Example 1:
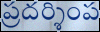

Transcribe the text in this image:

ప్రదర్శింప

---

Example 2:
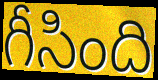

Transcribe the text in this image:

గీసింది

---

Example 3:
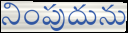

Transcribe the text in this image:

నింపుదును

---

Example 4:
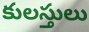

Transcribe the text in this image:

కులస్తులు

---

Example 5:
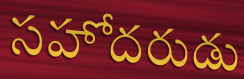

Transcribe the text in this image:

సహోదరుడు